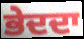
ਭੇਦਦਾ